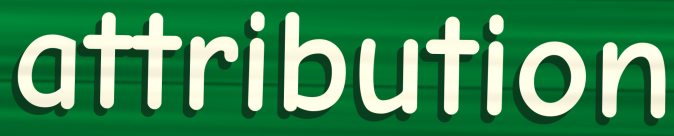
attribution